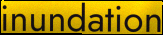
inundation